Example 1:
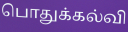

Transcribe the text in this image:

பொதுக்கல்வி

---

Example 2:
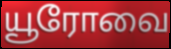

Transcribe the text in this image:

யூரோவை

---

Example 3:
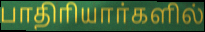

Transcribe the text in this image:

பாதிரியார்களில்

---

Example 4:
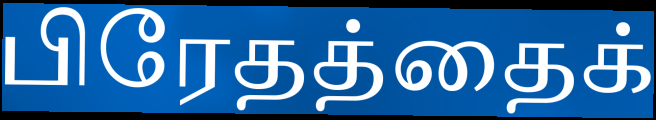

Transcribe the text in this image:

பிரேதத்தைக்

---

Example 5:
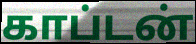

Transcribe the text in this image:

காப்டன்